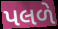
પલળે